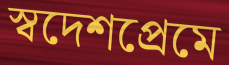
স্বদেশপ্রেমে